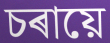
চৰায়ে